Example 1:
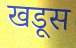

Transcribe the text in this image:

खडूस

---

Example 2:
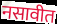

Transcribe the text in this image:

नसावीत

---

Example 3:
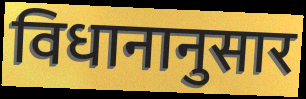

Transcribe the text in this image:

विधानानुसार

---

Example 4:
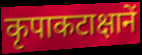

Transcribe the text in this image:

कृपाकटाक्षानें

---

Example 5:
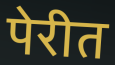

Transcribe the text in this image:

पेरीत